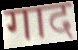
गाद